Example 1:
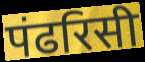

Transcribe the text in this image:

पंढरिसी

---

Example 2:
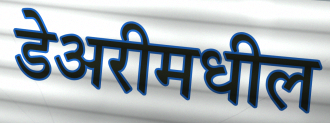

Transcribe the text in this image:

डेअरीमधील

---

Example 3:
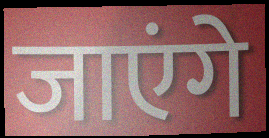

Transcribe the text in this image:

जाएंगे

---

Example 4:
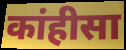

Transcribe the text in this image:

कांहीसा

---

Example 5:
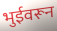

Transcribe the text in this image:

भुईवरून